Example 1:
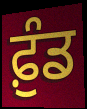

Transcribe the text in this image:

ਫ਼ੁੰਡ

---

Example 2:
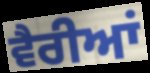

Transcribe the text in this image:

ਵੈਰੀਆਂ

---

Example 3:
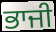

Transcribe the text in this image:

ਭਾਜੀ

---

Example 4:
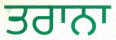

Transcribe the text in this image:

ਤਰਾਨਾ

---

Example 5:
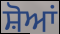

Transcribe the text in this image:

ਸ਼ੋਆਂ